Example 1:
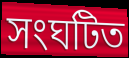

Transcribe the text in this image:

সংঘটিত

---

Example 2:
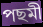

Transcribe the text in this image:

পছমী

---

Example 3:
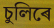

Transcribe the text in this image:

চুলিৰে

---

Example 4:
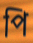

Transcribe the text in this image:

পি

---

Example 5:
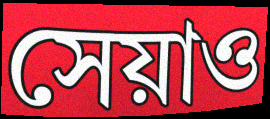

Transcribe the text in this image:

সেয়াও